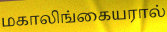
மகாலிங்கையரால்